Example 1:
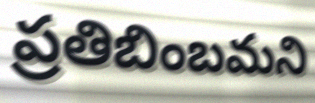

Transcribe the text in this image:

ప్రతిబింబమని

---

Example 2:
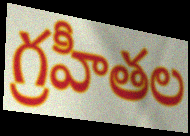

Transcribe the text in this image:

గ్రహీతల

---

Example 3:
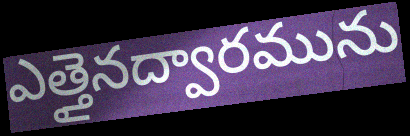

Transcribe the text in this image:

ఎత్తైనద్వారమును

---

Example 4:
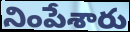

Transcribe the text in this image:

నింపేశారు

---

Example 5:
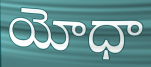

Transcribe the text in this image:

యోధా